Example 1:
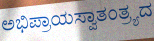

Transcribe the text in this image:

ಅಭಿಪ್ರಾಯಸ್ವಾತಂತ್ರ್ಯದ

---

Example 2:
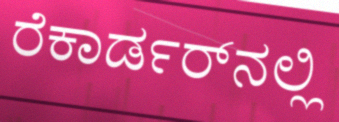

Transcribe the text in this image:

ರೆಕಾರ್ಡರ್‌ನಲ್ಲಿ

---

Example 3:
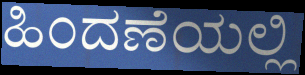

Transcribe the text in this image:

ಹಿಂದಣೆಯಲ್ಲಿ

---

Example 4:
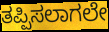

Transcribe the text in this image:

ತಪ್ಪಿಸಲಾಗಲೇ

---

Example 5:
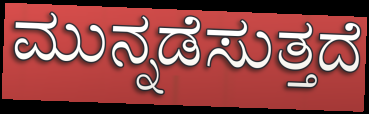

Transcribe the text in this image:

ಮುನ್ನಡೆಸುತ್ತದೆ